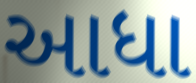
આધા